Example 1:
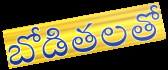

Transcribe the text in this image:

బోడితలతో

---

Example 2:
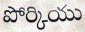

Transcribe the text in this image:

పోర్కియు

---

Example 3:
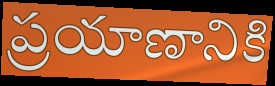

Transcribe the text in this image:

ప్రయాణానికి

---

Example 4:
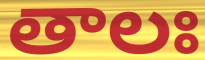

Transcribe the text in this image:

తాలః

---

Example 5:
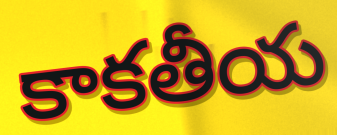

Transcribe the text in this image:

కాకతీయ